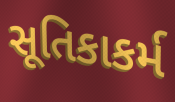
સૂતિકાકર્મ